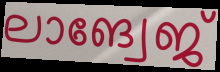
ലാങ്വേജ്